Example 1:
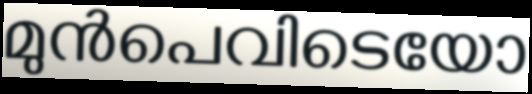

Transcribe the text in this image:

മുൻപെവിടെയോ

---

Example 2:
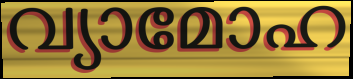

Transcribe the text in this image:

വ്യാമോഹ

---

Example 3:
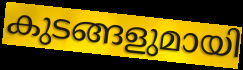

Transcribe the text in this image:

കുടങ്ങളുമായി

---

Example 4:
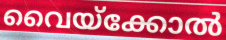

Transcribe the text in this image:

വൈയ്ക്കോൽ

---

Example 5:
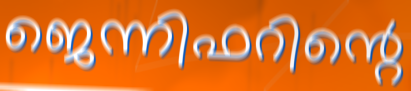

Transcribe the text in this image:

ജെന്നിഫറിന്റെ